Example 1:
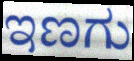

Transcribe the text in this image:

ಇಣಗು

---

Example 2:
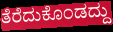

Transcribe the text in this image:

ತೆರೆದುಕೊಂಡದ್ದು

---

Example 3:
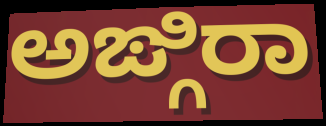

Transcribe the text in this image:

ಅಙ್ಗಿರಾ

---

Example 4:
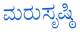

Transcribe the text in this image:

ಮರುಸೃಷ್ಠಿ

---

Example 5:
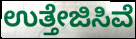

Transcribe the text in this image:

ಉತ್ತೇಜಿಸಿವೆ